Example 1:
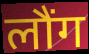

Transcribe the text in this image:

लौंग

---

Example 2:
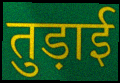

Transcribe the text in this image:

तुड़ाई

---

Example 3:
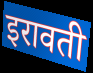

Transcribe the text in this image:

इरावती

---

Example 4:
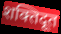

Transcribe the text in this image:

शक्तिदूत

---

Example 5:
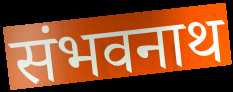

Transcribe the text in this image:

संभवनाथ